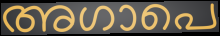
അഗാപെ